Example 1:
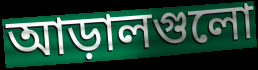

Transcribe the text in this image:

আড়ালগুলো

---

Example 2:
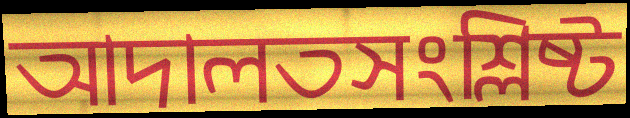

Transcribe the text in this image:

আদালতসংশ্লিষ্ট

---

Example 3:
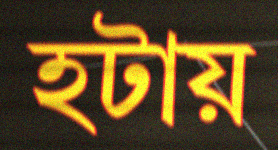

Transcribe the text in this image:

হটায়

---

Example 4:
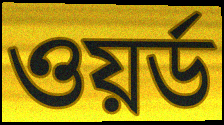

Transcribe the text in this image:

ওয়র্ড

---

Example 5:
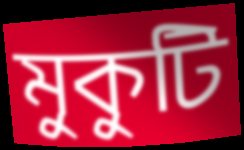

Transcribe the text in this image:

মুকুটি